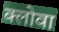
क्लोवा